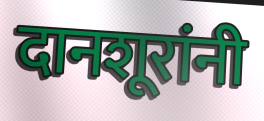
दानशूरांनी